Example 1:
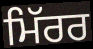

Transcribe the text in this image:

ਮਿੱਰਰ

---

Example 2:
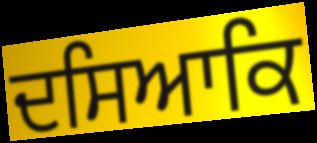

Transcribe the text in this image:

ਦਸਿਆਕਿ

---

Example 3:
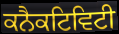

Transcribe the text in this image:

ਕਨੈਕਟਿਵਿਟੀ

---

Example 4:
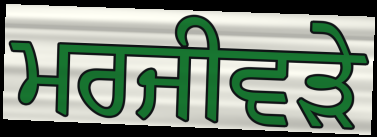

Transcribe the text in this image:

ਮਰਜੀਵੜੇ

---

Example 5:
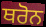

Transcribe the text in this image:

ਥਰੋਨ